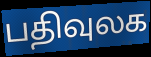
பதிவுலக